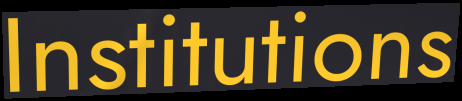
Institutions